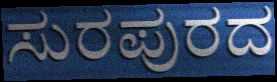
ಸುರಪುರದ